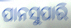
ପାନସୁପାରି